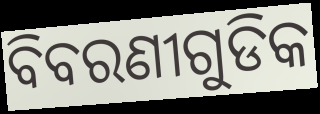
ବିବରଣୀଗୁଡିକ